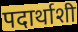
पदार्थाशी